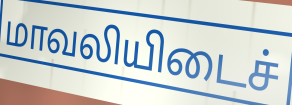
மாவலியிடைச்